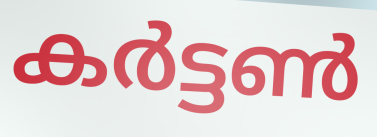
കർട്ടൺ